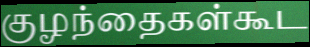
குழந்தைகள்கூட